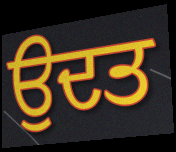
ਉਦਤ